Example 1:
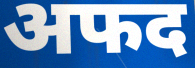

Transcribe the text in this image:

अफद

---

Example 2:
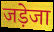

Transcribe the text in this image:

जड़ेजा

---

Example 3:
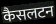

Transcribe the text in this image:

कैसलटन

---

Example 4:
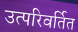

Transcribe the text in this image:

उत्परिवर्तित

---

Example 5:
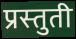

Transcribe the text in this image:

प्रस्तुती